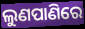
ଲୁଣପାଣିରେ